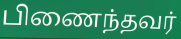
பிணைந்தவர்